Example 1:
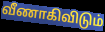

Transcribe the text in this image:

வீணாகிவிடும்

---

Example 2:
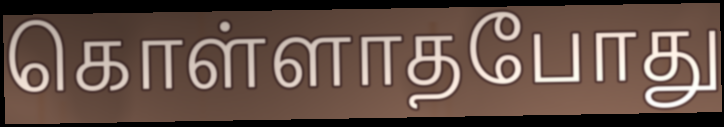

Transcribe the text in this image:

கொள்ளாதபோது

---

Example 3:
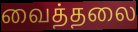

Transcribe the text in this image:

வைத்தலை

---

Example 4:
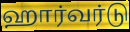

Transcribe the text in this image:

ஹார்வர்டு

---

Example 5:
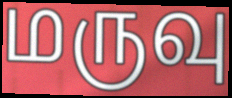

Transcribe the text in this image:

மருவு